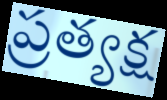
ప్రత్యక్ష